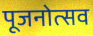
पूजनोत्सव